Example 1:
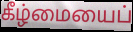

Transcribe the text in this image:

கீழ்மையைப்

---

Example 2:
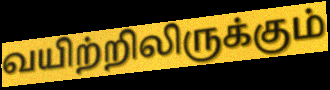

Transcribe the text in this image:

வயிற்றிலிருக்கும்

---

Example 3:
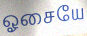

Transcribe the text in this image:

ஓசையே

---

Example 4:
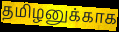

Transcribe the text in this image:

தமிழனுக்காக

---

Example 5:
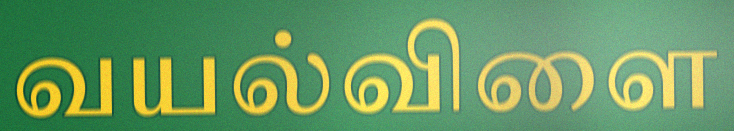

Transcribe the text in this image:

வயல்விளை